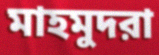
মাহমুদরা